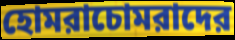
হোমরাচোমরাদের